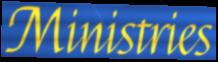
Ministries